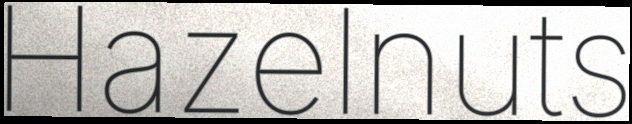
Hazelnuts